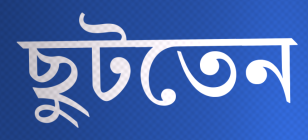
ছুটতেন